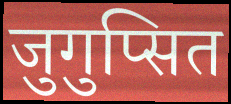
जुगुप्सित